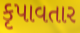
કૃપાવતાર